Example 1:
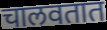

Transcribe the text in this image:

चालवतात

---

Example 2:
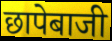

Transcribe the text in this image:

छापेबाजी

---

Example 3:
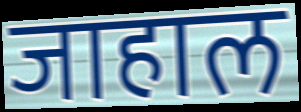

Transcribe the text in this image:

जाहाल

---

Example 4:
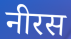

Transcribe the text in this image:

नीरस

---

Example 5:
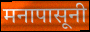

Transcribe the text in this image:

मनापासूनी